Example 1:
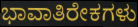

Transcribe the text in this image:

ಭಾವಾತಿರೇಕಗಳು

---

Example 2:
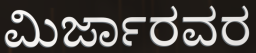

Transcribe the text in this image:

ಮಿರ್ಜಾರವರ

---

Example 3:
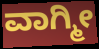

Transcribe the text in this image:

ವಾಗ್ಮೀ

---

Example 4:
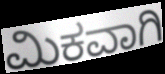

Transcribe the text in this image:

ಮಿಕವಾಗಿ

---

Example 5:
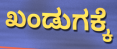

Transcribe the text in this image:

ಖಂಡುಗಕ್ಕೆ